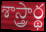
శాస్త్రార్థ